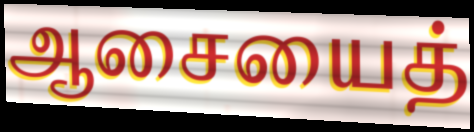
ஆசையைத்